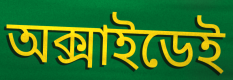
অক্সাইডেই